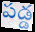
పడ్డ